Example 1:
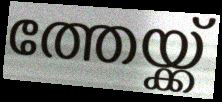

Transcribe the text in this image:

ത്തേയ്ക്ക്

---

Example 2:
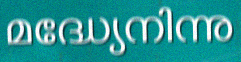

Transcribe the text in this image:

മദ്ധ്യേനിന്നു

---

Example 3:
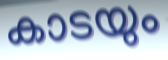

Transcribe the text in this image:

കാടയും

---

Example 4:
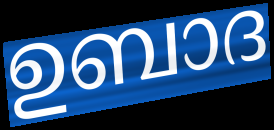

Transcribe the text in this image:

ഉബാദ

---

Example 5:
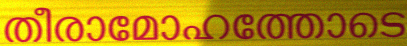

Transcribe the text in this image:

തീരാമോഹത്തോടെ